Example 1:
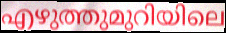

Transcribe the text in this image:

എഴുത്തുമുറിയിലെ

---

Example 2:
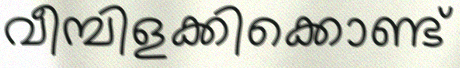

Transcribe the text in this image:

വീമ്പിളക്കിക്കൊണ്ട്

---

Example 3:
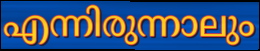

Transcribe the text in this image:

എന്നിരുന്നാലും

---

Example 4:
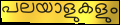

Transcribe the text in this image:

പലയാളുകളും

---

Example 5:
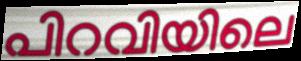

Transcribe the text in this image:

പിറവിയിലെ